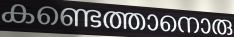
കണ്ടെത്താനൊരു